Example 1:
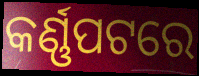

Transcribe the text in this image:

କର୍ଣ୍ଣପଟରେ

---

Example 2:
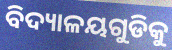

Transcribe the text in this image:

ବିଦ୍ୟାଳୟଗୁଡିକୁ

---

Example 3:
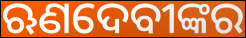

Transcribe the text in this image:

ଋଣଦେବୀଙ୍କର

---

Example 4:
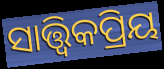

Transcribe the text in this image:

ସାତ୍ତ୍ଵିକପ୍ରିୟ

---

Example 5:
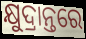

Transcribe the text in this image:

କ୍ଷୁଦ୍ରାନ୍ତରେ